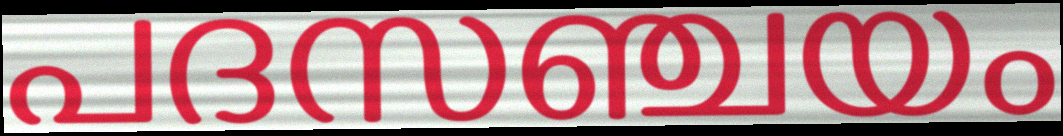
പദസഞ്ചയം